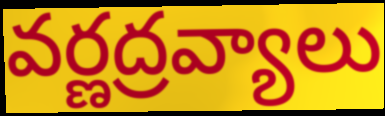
వర్ణద్రవ్యాలు